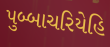
પુબ્બાચરિયેહિ